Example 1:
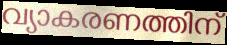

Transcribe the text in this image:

വ്യാകരണത്തിന്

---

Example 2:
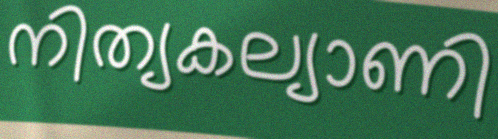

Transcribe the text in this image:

നിത്യകല്യാണി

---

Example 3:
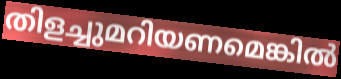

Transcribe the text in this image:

തിളച്ചുമറിയണമെങ്കിൽ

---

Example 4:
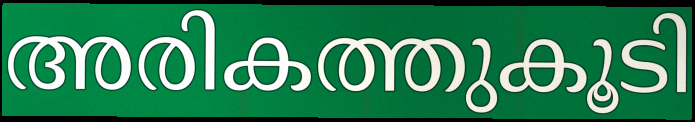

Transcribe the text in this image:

അരികത്തുകൂടി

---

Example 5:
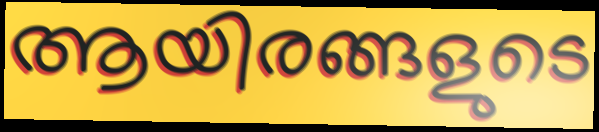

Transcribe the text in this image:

ആയിരങ്ങളുടെ